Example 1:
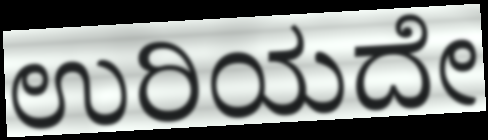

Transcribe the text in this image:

ಉರಿಯದೇ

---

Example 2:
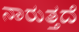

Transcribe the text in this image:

ನಾರುತ್ತದೆ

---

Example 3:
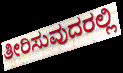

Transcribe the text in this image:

ತೀರಿಸುವುದರಲ್ಲಿ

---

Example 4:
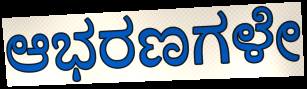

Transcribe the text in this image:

ಆಭರಣಗಳೇ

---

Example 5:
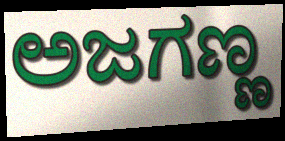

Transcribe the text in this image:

ಅಜಗಣ್ಣ